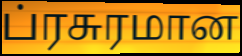
ப்ரசுரமான